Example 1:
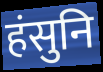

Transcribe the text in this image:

हंसुनि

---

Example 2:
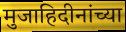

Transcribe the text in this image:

मुजाहिदीनांच्या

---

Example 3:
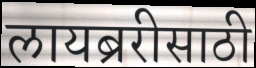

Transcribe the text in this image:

लायब्ररीसाठी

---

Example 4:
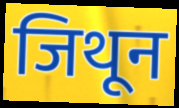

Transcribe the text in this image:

जिथून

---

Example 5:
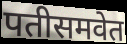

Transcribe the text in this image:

पतीसमवेत